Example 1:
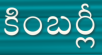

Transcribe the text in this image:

కింబర్లీ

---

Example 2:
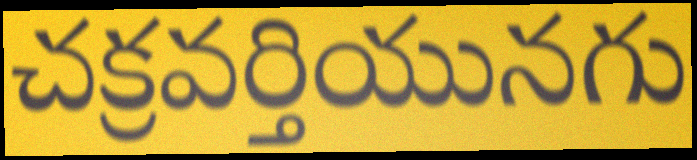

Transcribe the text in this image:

చక్రవర్తియునగు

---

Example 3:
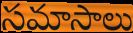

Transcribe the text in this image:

సమాసాలు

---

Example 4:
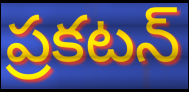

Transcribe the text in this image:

ప్రకటన్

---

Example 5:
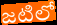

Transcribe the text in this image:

జటిలో